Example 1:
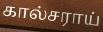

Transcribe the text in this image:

கால்சராய்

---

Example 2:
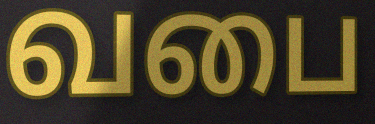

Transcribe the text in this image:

வபை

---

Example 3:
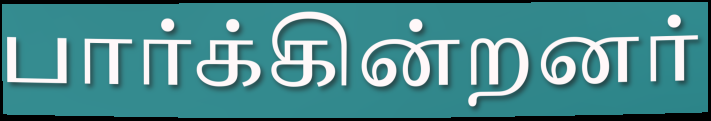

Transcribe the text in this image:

பார்க்கின்றனர்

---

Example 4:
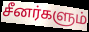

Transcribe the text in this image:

சீனர்களும்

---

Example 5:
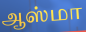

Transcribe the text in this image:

ஆஸ்மா